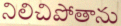
నిలిచిపోతాను